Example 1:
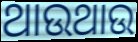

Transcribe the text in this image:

ଥାଉଥାଉ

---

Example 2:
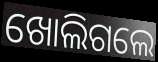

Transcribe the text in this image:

ଖୋଲିଗଲେ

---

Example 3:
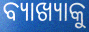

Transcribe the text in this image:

ବ୍ୟାଖ୍ୟାକୁ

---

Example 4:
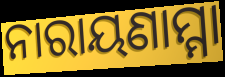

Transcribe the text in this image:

ନାରାୟଣାମ୍ମା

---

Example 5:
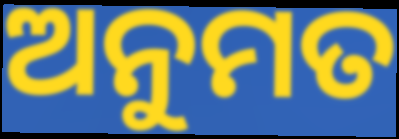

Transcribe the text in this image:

ଅନୁମତ